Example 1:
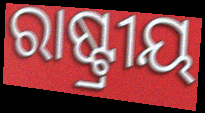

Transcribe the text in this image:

ରାଷ୍ଟ୍ରୀୟ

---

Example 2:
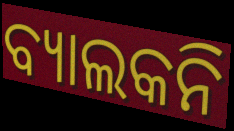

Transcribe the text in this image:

ବ୍ୟାଲକନି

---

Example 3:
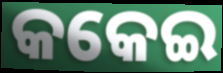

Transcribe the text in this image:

କକେଇ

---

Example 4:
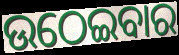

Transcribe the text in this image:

ଉଠେଇବାର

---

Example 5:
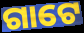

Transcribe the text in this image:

ଗାଟେ